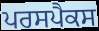
ਪਰਸਪੈਕਸ